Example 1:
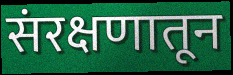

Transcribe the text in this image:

संरक्षणातून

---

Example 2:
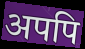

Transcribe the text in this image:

अपपि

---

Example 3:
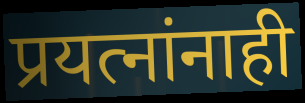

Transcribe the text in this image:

प्रयत्नांनाही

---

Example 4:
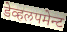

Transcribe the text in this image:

डेव्हलपमेन्ट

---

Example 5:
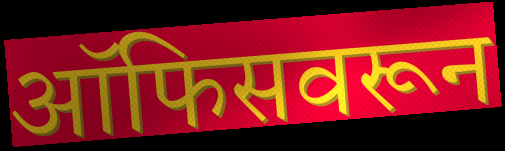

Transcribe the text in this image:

ऑफिसवरून